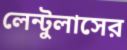
লেন্টুলাসের